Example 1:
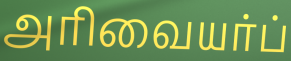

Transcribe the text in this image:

அரிவையர்ப்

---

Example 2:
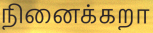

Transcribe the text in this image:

நினைக்கறா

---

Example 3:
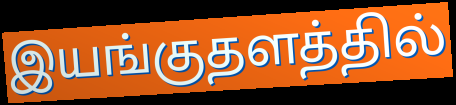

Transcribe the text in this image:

இயங்குதளத்தில்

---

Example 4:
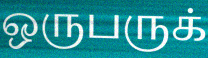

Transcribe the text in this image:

ஒருபருக்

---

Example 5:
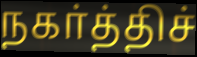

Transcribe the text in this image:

நகர்த்திச்